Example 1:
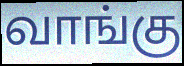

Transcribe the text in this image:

வாங்கு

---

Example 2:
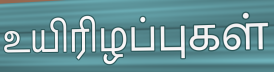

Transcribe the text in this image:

உயிரிழப்புகள்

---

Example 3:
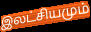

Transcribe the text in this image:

இலட்சியமும்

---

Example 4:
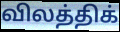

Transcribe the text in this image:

விலத்திக்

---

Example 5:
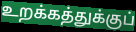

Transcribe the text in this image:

உறக்கத்துக்குப்